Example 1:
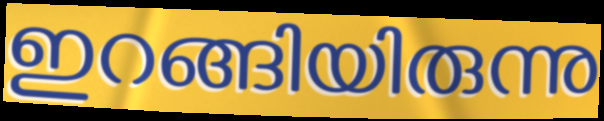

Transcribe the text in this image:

ഇറങ്ങിയിരുന്നു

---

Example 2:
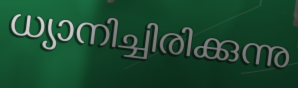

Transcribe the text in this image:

ധ്യാനിച്ചിരിക്കുന്നു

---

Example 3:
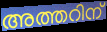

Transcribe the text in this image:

അത്തറിന്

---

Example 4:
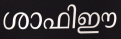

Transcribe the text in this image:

ശാഫിഈ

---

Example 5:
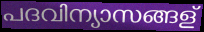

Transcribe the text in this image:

പദവിന്യാസങ്ങള്